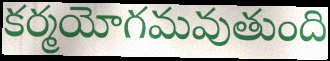
కర్మయోగమవుతుంది